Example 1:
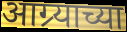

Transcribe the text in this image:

आग्र्याच्या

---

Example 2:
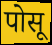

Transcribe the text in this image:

पोसू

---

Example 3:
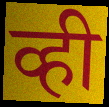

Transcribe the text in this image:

व्ही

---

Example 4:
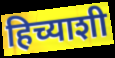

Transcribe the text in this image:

हिच्याशी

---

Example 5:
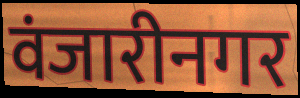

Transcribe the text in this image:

वंजारीनगर